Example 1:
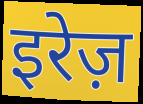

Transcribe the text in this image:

इरेज़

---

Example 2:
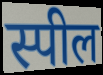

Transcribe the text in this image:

स्पील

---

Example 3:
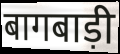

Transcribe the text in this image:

बागबाड़ी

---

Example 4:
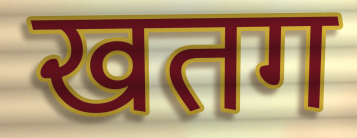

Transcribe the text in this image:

खतग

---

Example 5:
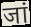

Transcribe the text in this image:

जां